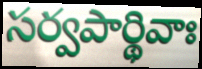
సర్వపార్థివాః